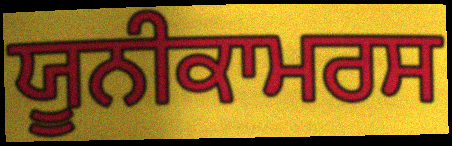
ਯੂਨੀਕਾਮਰਸ